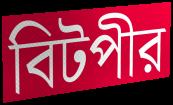
বিটপীর